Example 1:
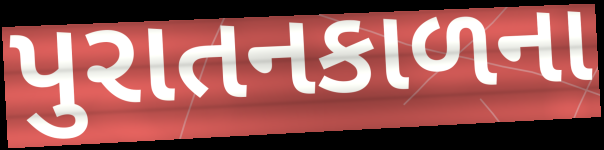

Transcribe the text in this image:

પુરાતનકાળના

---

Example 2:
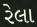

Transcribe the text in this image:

રેલા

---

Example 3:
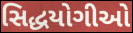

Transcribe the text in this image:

સિદ્ધયોગીઓ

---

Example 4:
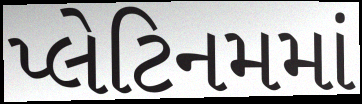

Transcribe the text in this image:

પ્લેટિનમમાં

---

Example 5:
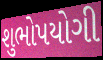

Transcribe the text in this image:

શુભોપયોગી